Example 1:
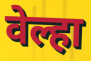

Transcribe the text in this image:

वेल्हा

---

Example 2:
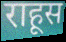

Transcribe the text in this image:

राहूस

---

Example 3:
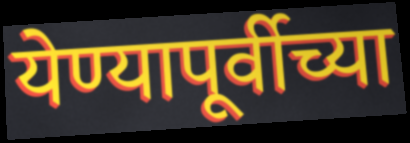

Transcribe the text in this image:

येण्यापूर्वीच्या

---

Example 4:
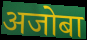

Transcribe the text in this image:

अजोबा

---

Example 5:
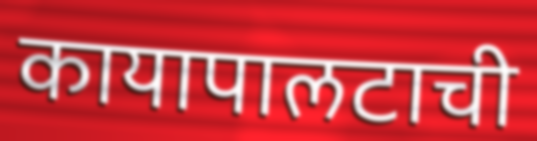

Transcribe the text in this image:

कायापालटाची